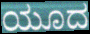
ಯೂದ